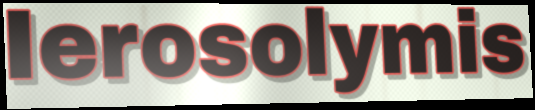
Ierosolymis